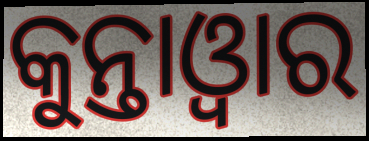
କୁନ୍ତାଓ୍ୱାର